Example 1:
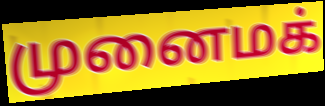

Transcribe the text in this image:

முனைமக்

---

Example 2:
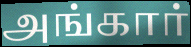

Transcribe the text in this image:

அங்கார்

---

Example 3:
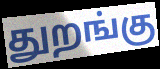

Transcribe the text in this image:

துறங்கு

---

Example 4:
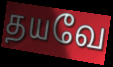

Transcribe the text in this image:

தயவே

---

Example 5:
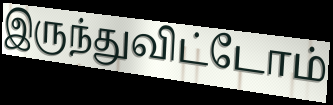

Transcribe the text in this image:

இருந்துவிட்டோம்